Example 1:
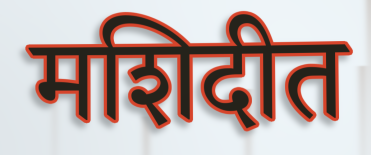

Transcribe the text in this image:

मशिदीत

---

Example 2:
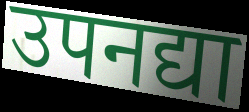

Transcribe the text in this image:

उपनद्या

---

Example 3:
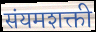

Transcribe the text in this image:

संयमशक्ती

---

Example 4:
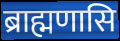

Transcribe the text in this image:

ब्राह्मणासि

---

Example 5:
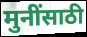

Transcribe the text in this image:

मुनींसाठी